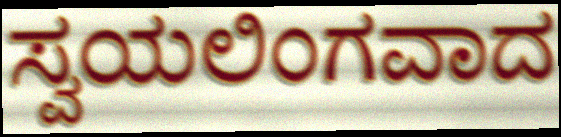
ಸ್ವಯಲಿಂಗವಾದ